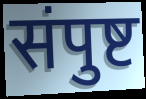
संपुष्ट